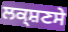
ਲਕ੍ਸ਼ਣਸੇ